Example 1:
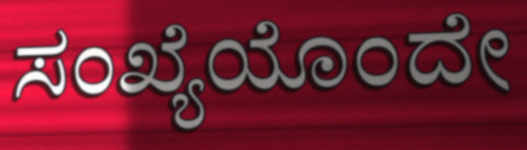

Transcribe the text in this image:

ಸಂಖ್ಯೆಯೊಂದೇ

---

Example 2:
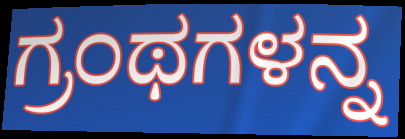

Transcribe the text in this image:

ಗ್ರಂಥಗಳನ್ನ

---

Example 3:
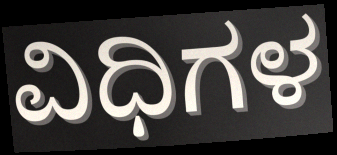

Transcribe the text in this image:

ವಿಧಿಗಳ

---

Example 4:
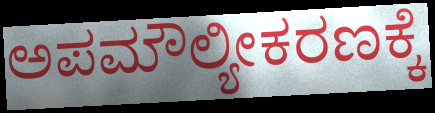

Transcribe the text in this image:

ಅಪಮೌಲ್ಯೀಕರಣಕ್ಕೆ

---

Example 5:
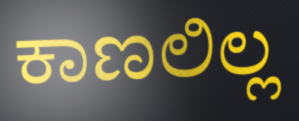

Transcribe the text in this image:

ಕಾಣಲಿಲ್ಲ